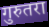
गुरुतरा